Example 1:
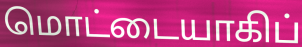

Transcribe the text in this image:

மொட்டையாகிப்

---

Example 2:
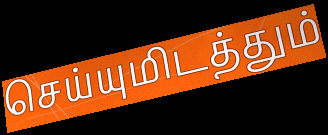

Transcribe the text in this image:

செய்யுமிடத்தும்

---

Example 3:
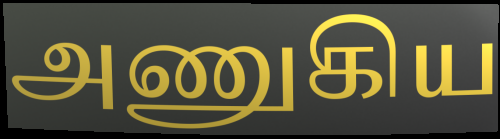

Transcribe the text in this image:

அணுகிய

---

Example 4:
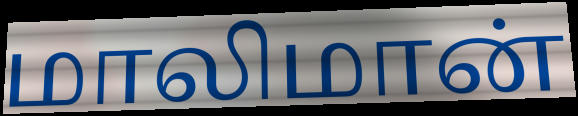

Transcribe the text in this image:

மாலிமான்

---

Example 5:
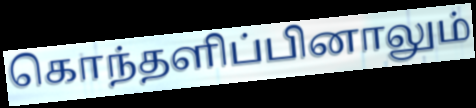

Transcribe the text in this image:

கொந்தளிப்பினாலும்